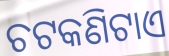
ଚଟକଣିଟାଏ